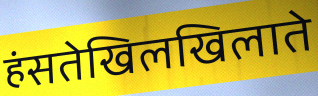
हंसतेखिलखिलाते